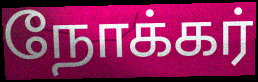
நோக்கர்